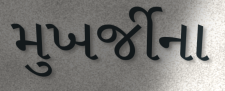
મુખર્જીના